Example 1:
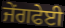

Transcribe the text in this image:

ਜੇਂਗਫੇਈ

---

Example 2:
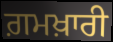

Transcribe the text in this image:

ਗ਼ਮਖ਼ਾਰੀ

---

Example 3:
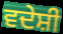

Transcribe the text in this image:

ਵਦੇਸ਼ੀ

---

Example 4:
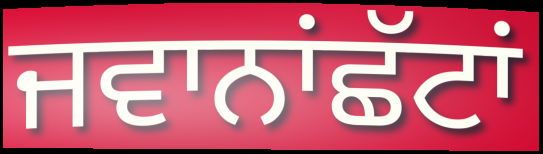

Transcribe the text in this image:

ਜਵਾਨਾਂਛੱਟਾਂ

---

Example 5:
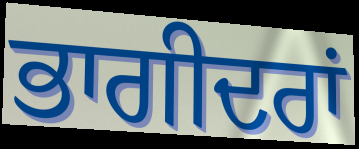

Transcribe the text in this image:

ਭਾਗੀਦਰਾਂ